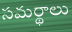
సమర్థాలు